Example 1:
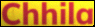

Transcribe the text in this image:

Chhila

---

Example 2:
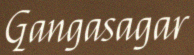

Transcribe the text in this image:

Gangasagar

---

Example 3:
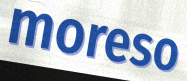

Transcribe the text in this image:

moreso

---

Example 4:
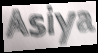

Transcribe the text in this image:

Asiya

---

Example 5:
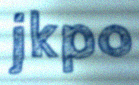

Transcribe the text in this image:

jkpo